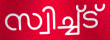
സ്വിച്ച്ട്